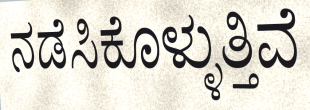
ನಡೆಸಿಕೊಳ್ಳುತ್ತಿವೆ